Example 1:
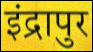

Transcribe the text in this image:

इंद्रापुर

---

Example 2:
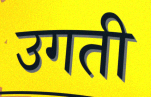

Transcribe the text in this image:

उगती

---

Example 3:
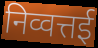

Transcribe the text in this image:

निव्वत्तई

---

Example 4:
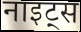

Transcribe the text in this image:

नाइट्स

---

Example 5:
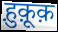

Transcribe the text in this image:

ह़ुक़ूक़